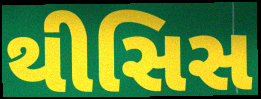
થીસિસ